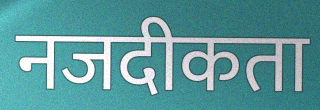
नजदीकता